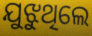
ଯୁଝୁଥିଲେ